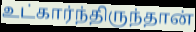
உட்கார்ந்திருந்தான்